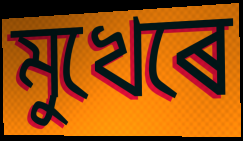
মুখেৰে